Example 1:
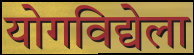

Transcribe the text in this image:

योगविद्येला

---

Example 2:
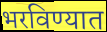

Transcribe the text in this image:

भरविण्यात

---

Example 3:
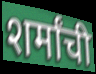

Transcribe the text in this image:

शर्मांची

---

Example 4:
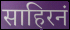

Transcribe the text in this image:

साहिरनं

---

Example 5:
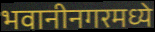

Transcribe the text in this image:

भवानीनगरमध्ये